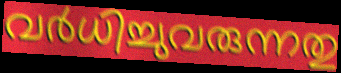
വർധിച്ചുവരുന്നതു